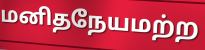
மனிதநேயமற்ற